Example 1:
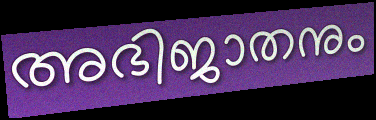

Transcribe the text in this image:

അഭിജാതനും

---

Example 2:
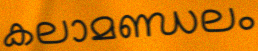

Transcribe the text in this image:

കലാമണ്ഡലം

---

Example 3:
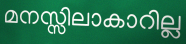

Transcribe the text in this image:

മനസ്സിലാകാറില്ല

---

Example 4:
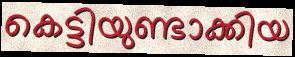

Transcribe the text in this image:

കെട്ടിയുണ്ടാക്കിയ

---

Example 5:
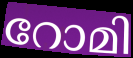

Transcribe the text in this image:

റോമി